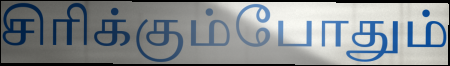
சிரிக்கும்போதும்